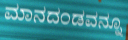
ಮಾನದಂಡವನ್ನೂ